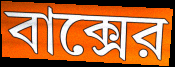
বাক্সের